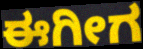
ಈಗೀಗ